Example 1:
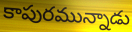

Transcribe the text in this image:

కాపురమున్నాడు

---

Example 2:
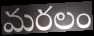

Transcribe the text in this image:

మరలం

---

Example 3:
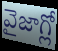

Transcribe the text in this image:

వైజాగ్లో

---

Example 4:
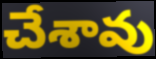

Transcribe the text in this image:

చేశావు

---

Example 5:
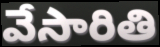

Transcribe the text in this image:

వేసారితి